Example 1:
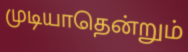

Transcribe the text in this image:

முடியாதென்றும்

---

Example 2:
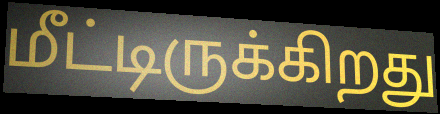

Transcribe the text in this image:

மீட்டிருக்கிறது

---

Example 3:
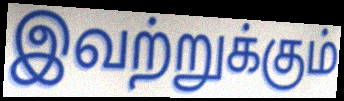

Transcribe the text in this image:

இவற்றுக்கும்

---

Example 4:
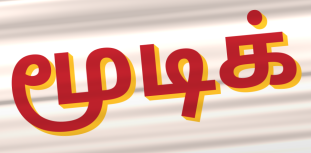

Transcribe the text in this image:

மூடிக்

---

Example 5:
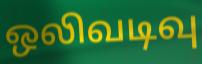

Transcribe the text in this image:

ஒலிவடிவு